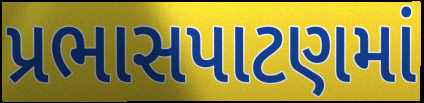
પ્રભાસપાટણમાં